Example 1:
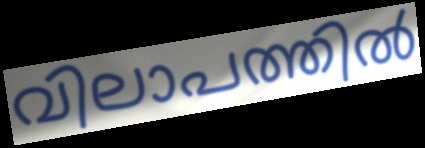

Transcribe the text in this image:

വിലാപത്തിൽ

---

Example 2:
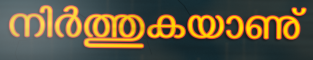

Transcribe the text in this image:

നിർത്തുകയാണു്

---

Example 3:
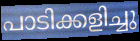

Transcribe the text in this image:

പാടിക്കളിച്ചു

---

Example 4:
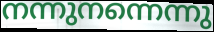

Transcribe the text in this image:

നന്നുനന്നെന്നു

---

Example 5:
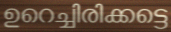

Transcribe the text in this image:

ഉറെച്ചിരിക്കട്ടെ